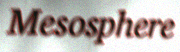
Mesosphere